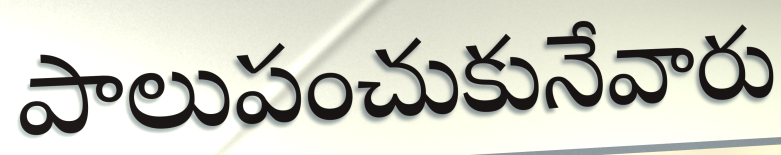
పాలుపంచుకునేవారు